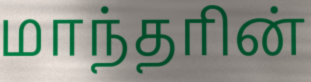
மாந்தரின்